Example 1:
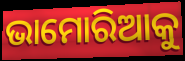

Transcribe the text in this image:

ଭାମୋରିଆକୁ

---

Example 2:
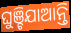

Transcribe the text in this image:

ଘୁଞ୍ଚିଯାଆନ୍ତି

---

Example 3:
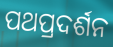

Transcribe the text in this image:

ପଥପ୍ରଦର୍ଶନ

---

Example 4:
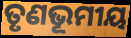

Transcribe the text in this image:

ତୃଣଭୂମୀୟ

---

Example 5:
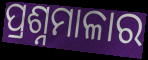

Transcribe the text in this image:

ପ୍ରଶ୍ନମାଳାର